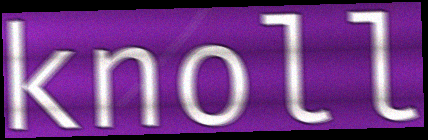
knoll